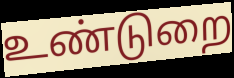
உண்டுறை